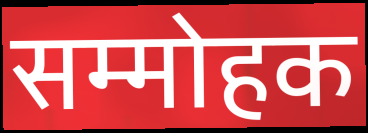
सम्मोहक